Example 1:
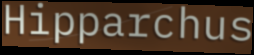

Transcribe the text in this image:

Hipparchus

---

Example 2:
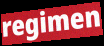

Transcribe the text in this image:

regimen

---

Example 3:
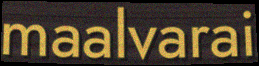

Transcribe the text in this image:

maalvarai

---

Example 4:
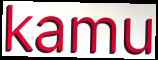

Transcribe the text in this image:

kamu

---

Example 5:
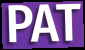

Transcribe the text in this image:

PAT